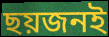
ছয়জনই